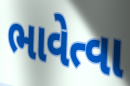
ભાવેત્વા